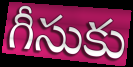
గీసుకు